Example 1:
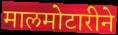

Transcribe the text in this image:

मालमोटारीने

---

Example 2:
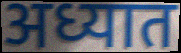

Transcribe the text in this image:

अध्यात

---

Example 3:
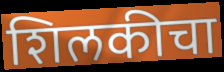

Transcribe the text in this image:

शिलकीचा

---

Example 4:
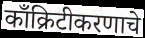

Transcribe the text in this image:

काँक्रिटीकरणाचे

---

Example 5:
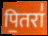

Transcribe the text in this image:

पि॒तरा॑